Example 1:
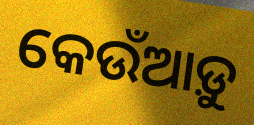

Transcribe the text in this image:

କେଉଁଆଡ଼ୁ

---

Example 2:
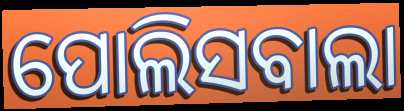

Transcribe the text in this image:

ପୋଲିସବାଲା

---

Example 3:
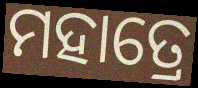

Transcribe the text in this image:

ମହାତ୍ରେ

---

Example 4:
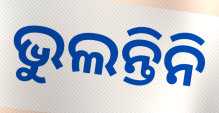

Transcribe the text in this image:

ଭୁଲନ୍ତିନି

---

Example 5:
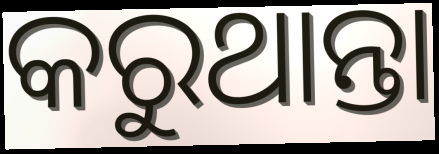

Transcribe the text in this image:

କରୁଥାନ୍ତା